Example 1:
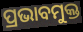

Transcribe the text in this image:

ପ୍ରଭାବମୁକ୍ତ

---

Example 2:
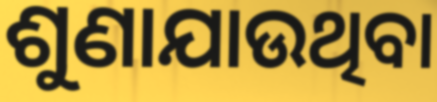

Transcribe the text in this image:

ଶୁଣାଯାଉଥିବା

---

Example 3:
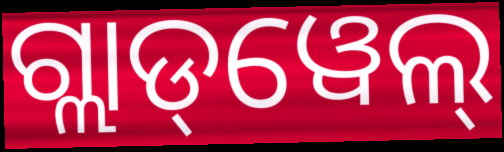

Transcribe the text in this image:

ଗ୍ଲାଡ୍‌ୱେଲ୍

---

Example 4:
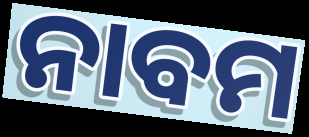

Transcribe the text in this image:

ନାବମ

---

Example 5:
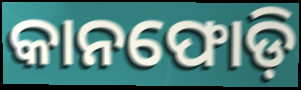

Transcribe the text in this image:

କାନଫୋଡ଼ି